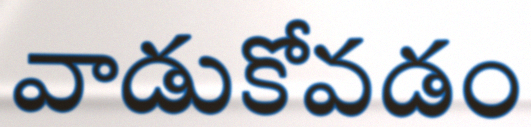
వాడుకోవడం